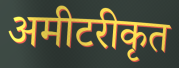
अमीटरीकृत